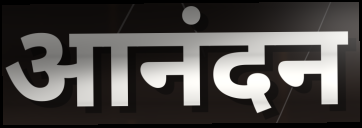
आनंदन